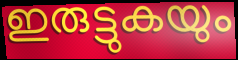
ഇരുട്ടുകയും